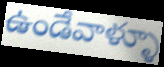
ఉండేవాళ్ళూ